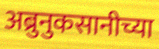
अब्रुनुकसानीच्या